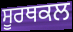
ਸੂਰਥਕਲ